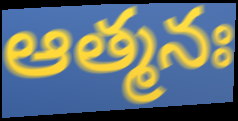
ఆత్మనః